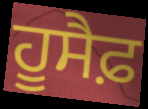
ਹੂਸੈਫ਼